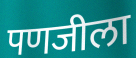
पणजीला